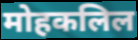
मोहकलिल